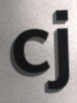
cj